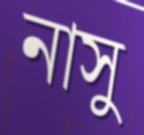
নাসু